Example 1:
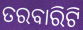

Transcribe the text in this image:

ତରବାରିଟି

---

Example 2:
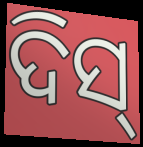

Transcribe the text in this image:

ଦିସ୍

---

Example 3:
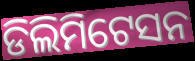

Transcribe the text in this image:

ଡିଲିମିଟେସନ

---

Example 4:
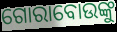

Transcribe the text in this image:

ଗୋରାବୋଉଙ୍କୁ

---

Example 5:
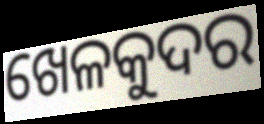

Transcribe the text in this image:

ଖେଳକୁଦର